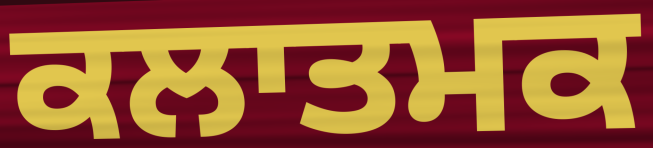
ਕਲਾਤਮਕ